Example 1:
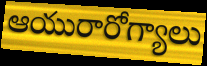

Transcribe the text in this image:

ఆయురారోగ్యాలు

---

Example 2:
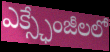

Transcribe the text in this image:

ఎక్స్ఛేంజీలలో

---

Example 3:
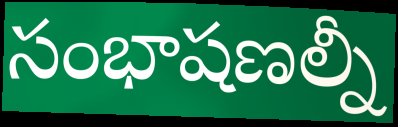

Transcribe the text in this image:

సంభాషణల్నీ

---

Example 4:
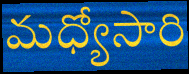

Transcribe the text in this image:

మధ్యోసారి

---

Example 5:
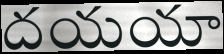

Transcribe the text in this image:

దయయా